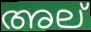
അല്